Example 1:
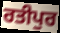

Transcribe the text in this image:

ਰਤੀਪੁਰ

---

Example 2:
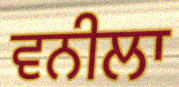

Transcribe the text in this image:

ਵਨੀਲਾ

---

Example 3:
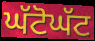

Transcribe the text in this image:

ਘੱਟੋਘੱਟ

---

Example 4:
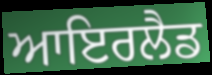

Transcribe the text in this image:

ਆਇਰਲੈਡ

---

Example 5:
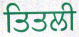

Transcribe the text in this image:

ਤਿਤਲੀ